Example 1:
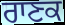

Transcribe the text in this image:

ਰਾਣਕ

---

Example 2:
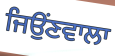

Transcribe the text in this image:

ਜਿਉਂਣਵਾਲਾ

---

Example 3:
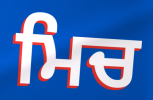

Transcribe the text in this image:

ਮਿਚ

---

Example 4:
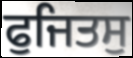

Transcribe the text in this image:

ਫੁਜਿਤਸੁ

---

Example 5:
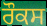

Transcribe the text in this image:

ਰੌਕਸ